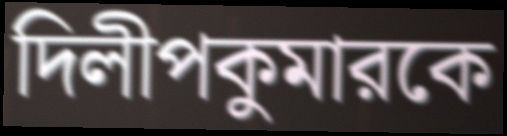
দিলীপকুমারকে